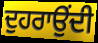
ਦੁਹਰਾਉਂਦੀ